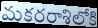
మకరరాశిలోకి